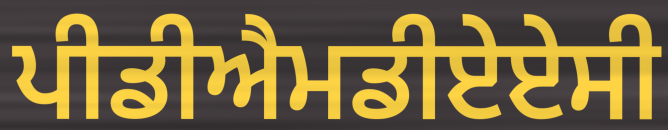
ਪੀਡੀਐਮਡੀਏਏਸੀ